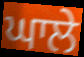
ਘਾਲੇ